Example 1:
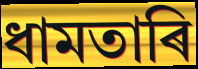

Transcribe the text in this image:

ধামতাৰি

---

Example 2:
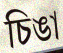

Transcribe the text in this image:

চিঙা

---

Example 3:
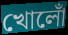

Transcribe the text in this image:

খোলোঁ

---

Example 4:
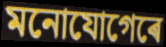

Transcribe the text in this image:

মনোযোগেৰে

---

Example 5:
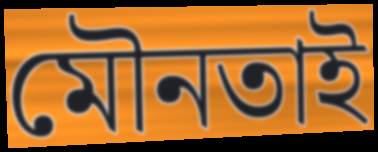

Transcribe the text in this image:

মৌনতাই